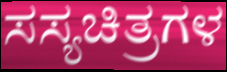
ಸಸ್ಯಚಿತ್ರಗಳ